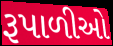
રૂપાળીઓ